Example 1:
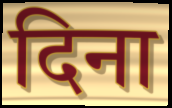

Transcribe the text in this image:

दिना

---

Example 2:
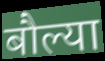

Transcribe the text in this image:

बौल्या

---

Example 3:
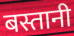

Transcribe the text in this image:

बस्तानी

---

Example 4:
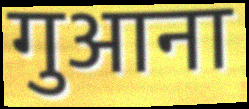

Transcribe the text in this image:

गुआना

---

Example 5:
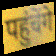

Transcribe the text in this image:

पहुंचेंगे